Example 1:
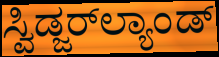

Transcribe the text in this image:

ಸ್ವಿಡ್ಜರ್‌ಲ್ಯಾಂಡ್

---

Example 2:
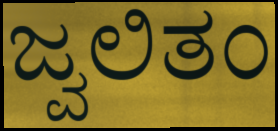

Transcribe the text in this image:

ಜ್ವಲಿತಂ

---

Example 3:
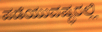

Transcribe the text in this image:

ಪಡೆಯುವಷ್ಟರಲ್ಲಿ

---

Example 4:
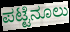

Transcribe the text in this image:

ಪಟ್ಟೆನೂಲು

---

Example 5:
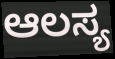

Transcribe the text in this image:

ಆಲಸ್ಯ